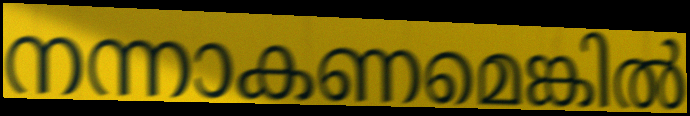
നന്നാകണമെങ്കിൽ